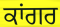
ਕਾਂਗਰ